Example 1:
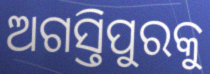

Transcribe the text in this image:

ଅଗସ୍ତିପୁରକୁ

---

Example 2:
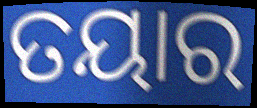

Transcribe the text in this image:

ତୟାର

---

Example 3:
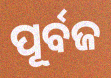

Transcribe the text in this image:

ପୂର୍ବଜ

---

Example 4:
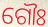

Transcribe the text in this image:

ଗୌଃ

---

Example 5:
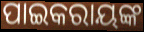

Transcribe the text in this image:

ପାଇକରାୟଙ୍କ